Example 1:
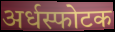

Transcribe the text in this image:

अर्धस्फोटक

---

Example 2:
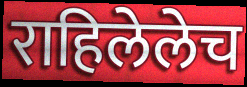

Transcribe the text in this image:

राहिलेलेच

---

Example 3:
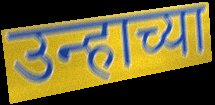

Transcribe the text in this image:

उन्हाच्या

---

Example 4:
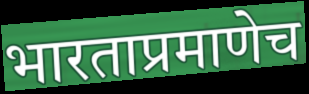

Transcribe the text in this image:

भारताप्रमाणेच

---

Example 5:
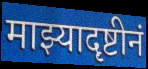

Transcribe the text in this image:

माझ्यादृष्टीनं